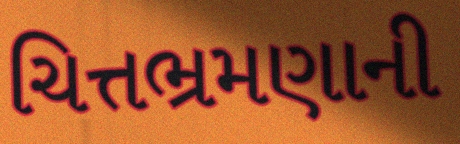
ચિત્તભ્રમણાની